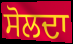
ਸੋਲਦਾ